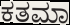
ಕತಮಾ